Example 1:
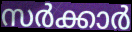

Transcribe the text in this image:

സർക്കാർ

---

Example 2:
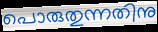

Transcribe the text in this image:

പൊരുതുന്നതിനു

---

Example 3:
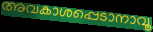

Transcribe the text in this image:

അവകാശപ്പെടാനാവൂ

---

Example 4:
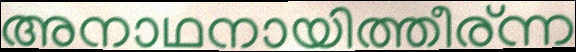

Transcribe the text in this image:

അനാഥനായിത്തീര്ന്ന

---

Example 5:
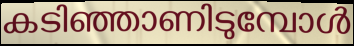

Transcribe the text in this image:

കടിഞ്ഞാണിടുമ്പോൾ